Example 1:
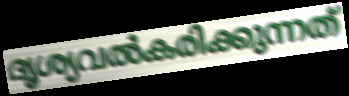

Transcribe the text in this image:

ദൃശ്യവൽകരിക്കുന്നത്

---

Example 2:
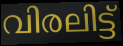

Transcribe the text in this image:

വിരലിട്ട്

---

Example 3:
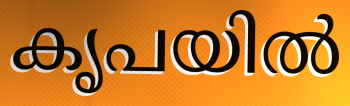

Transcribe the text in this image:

കൃപയിൽ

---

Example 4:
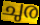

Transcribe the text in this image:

ചുര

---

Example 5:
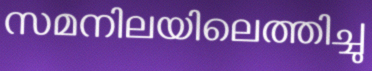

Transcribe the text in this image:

സമനിലയിലെത്തിച്ചു